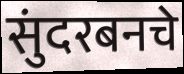
सुंदरबनचे